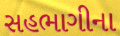
સહભાગીના